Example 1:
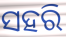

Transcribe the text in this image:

ସହରି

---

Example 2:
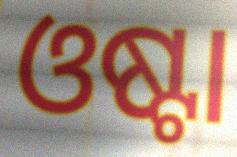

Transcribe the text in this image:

ଓଷ୍ଟା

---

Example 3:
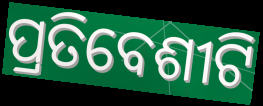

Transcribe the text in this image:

ପ୍ରତିବେଶୀଟି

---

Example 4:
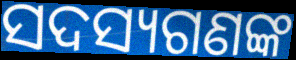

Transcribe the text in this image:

ସଦସ୍ୟଗଣଙ୍କ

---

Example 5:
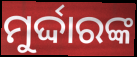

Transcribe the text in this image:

ମୁର୍ଦ୍ଦାରଙ୍କ